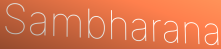
Sambharana